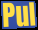
Pul